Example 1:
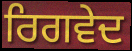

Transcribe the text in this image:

ਰਿਗਵੇਦ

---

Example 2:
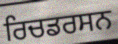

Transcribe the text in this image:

ਰਿਚਡਰਸਨ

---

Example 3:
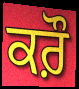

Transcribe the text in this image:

ਕਰ਼ੌ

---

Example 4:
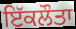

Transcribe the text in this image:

ਇੱਕਲੌਤਾ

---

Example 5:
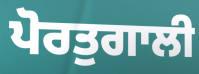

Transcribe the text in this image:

ਪੋਰਤੁਗਾਲੀ